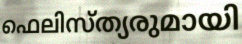
ഫെലിസ്ത്യരുമായി